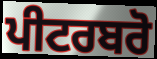
ਪੀਟਰਬਰੋ